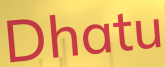
Dhatu